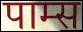
पाम्स